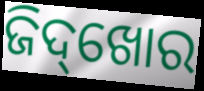
ଜିଦ୍‌ଖୋର